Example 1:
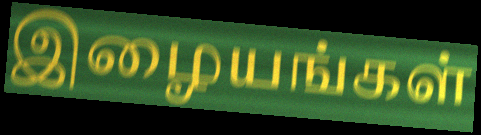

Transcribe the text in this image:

இழையங்கள்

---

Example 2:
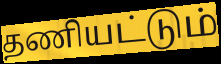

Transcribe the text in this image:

தணியட்டும்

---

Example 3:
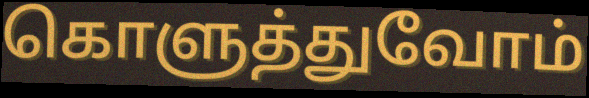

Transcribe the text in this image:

கொளுத்துவோம்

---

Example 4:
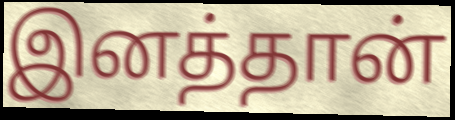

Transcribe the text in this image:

இனத்தான்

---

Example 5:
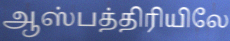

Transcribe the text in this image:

ஆஸ்பத்திரியிலே